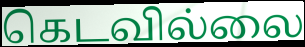
கெடவில்லை